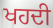
ਖਹਦੀ